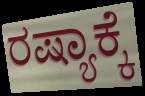
ರಷ್ಯಾಕ್ಕೆ